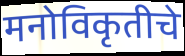
मनोविकृतीचे